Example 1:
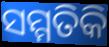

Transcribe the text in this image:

ସମ୍ମତିକି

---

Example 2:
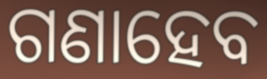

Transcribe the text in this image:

ଗଣାହେବ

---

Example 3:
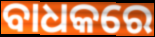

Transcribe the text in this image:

ବାଧକରେ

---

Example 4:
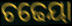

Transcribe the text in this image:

ଚଢେୟା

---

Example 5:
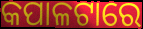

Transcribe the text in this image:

କପାଳଟାରେ